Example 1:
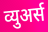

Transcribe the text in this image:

व्युअर्स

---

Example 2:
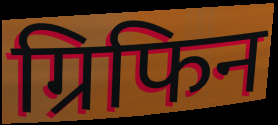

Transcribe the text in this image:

ग्रिफिन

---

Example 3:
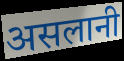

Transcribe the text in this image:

असलानी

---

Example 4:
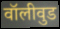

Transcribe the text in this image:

वॉलीवुड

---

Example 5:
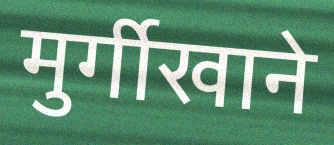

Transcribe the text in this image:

मुर्गीखाने